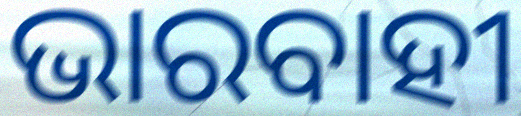
ଭାରବାହୀ